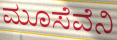
ಮೂಸೆವೆನಿ